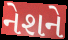
નેશને